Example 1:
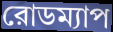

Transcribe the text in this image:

রোডম্যাপ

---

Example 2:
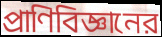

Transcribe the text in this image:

প্রাণিবিজ্ঞানের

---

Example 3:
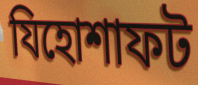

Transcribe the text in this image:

যিহোশাফট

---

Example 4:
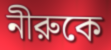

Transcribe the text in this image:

নীরুকে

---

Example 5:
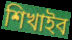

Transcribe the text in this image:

শিখাইব